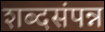
शब्दसंपन्न